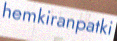
hemkiranpatki